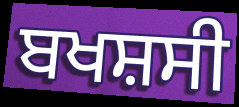
ਬਖਸ਼ਸੀ